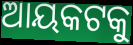
ଆୟକଟକୁ